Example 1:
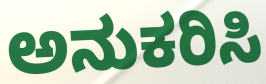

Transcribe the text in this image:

ಅನುಕರಿಸಿ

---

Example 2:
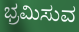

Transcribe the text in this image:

ಭ್ರಮಿಸುವ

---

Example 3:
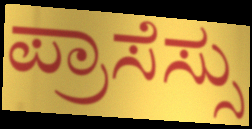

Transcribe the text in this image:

ಪ್ರಾಸೆಸ್ಸು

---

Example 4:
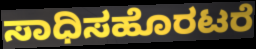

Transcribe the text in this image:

ಸಾಧಿಸಹೊರಟರೆ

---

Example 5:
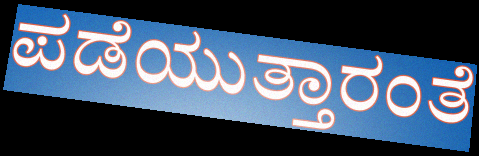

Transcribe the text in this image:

ಪಡೆಯುತ್ತಾರಂತೆ